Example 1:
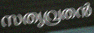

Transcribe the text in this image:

സത്യവ്രതൻ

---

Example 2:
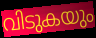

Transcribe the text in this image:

വിടുകയും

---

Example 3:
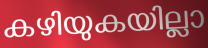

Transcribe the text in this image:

കഴിയുകയില്ലാ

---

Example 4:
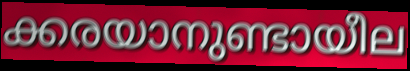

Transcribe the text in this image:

ക്കരയാനുണ്ടായീല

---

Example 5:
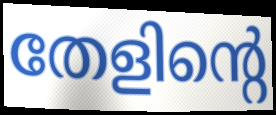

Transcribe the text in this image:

തേളിന്റെ